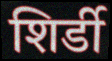
शिर्डी